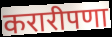
करारीपणा